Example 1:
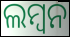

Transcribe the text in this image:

ଲମ୍ବନ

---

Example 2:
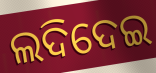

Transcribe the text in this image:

ଲଦିଦେଇ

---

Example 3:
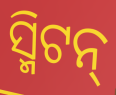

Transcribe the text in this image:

ସ୍ମିଟନ୍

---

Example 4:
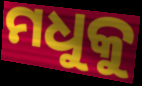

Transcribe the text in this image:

ମଧୁକୁ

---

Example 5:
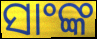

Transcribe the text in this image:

ସାଂଙ୍କ